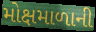
મોક્ષમાળાની